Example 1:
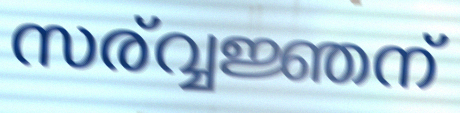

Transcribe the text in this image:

സര്വ്വജ്ഞന്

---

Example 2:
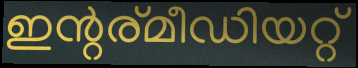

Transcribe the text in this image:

ഇന്റര്മീഡിയറ്റ്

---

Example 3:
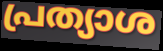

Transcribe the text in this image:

പ്രത്യാശ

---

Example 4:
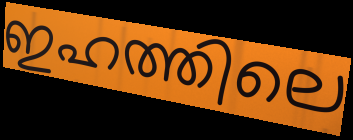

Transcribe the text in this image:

ഇഹത്തിലെ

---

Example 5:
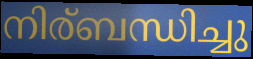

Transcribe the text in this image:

നിര്ബന്ധിച്ചു